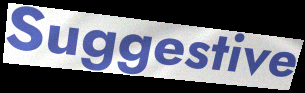
Suggestive